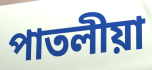
পাতলীয়া